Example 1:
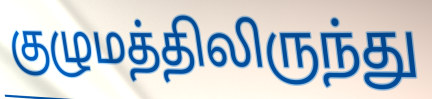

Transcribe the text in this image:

குழுமத்திலிருந்து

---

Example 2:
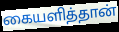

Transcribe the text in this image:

கையளித்தான்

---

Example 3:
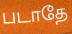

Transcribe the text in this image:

படாதே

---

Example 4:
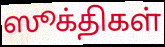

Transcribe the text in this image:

ஸூக்திகள்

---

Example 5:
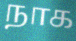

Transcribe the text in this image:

நாக